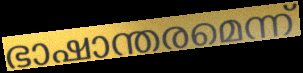
ഭാഷാന്തരമെന്ന്